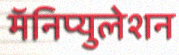
मॅनिप्युलेशन